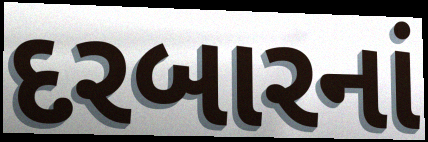
દરબારનાં